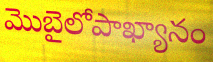
మొబైలోపాఖ్యానం